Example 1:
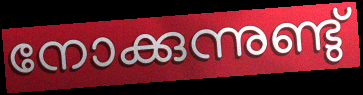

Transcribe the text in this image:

നോക്കുന്നുണ്ടു്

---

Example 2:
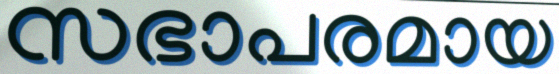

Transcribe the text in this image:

സഭാപരമായ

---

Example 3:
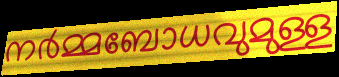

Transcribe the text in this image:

നർമ്മബോധവുമുള്ള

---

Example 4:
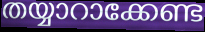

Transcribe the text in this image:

തയ്യാറാക്കേണ്ട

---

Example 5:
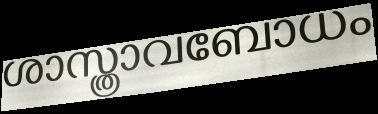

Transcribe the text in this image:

ശാസ്ത്രാവബോധം